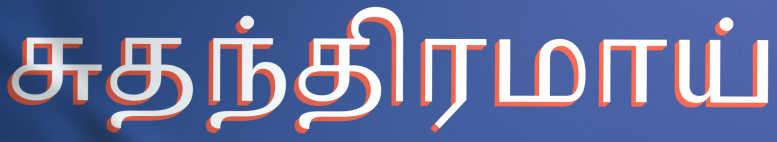
சுதந்திரமாய்